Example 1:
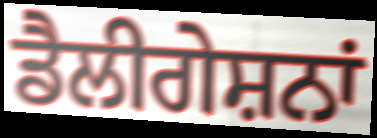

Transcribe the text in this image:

ਡੈਲੀਗੇਸ਼ਨਾਂ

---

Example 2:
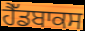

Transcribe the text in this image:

ਹੈੱਡਬਾਕਸ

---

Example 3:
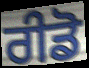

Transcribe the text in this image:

ਰੀਡੋ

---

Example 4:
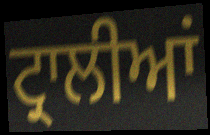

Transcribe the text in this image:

ਟ੍ਰਾਲੀਆਂ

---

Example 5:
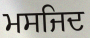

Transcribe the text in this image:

ਮਸਜਿਦ